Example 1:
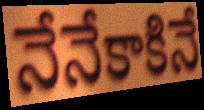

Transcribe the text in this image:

నేనేకాకినే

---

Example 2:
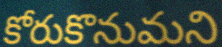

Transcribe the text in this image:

కోరుకొనుమని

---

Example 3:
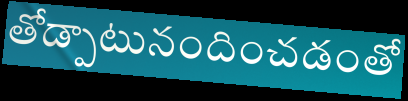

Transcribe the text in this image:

తోడ్పాటునందించడంతో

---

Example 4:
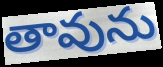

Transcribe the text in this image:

తావును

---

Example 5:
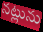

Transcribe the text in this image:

నట్లును